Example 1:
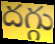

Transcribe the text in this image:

దగ్గు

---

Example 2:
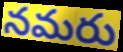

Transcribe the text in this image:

నమరు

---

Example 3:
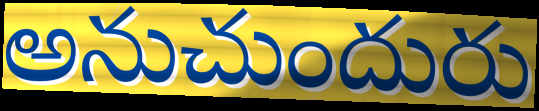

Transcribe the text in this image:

అనుచుందురు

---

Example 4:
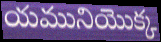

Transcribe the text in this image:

యమునియొక్క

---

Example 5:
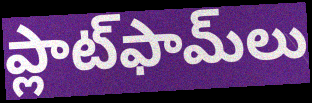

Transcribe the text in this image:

ప్లాట్‌ఫామ్‌లు